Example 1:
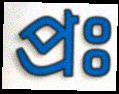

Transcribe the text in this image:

প্ৰঃ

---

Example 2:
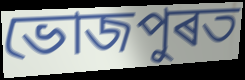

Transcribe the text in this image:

ভোজপুৰত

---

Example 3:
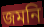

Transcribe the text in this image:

জমনি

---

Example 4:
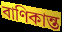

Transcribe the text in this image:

বাণিকান্ত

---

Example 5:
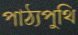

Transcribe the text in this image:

পাঠ্যপুথি